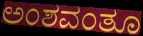
ಅಂಶವಂತೂ